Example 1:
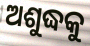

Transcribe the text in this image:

ଅଶୁଦ୍ଧକୁ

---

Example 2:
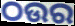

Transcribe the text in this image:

ଠଉର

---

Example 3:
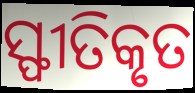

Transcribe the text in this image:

ସ୍ଫୀତିକୃତ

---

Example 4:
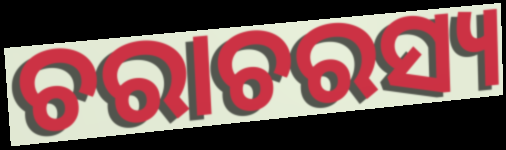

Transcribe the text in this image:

ଚରାଚରସ୍ୟ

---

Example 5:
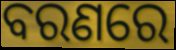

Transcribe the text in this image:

ବରଣରେ